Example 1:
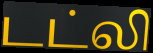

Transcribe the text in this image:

டட்லி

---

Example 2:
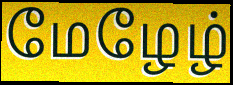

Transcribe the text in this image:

மேழேழ்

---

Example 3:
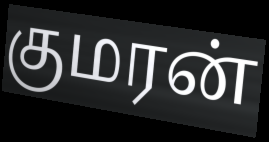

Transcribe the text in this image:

குமரன்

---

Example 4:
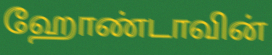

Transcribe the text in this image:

ஹோண்டாவின்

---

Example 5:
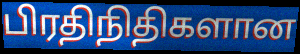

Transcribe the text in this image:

பிரதிநிதிகளான